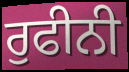
ਰੁਫੀਨੀ